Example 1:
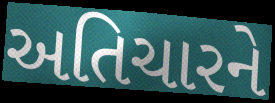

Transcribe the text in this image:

અતિચારને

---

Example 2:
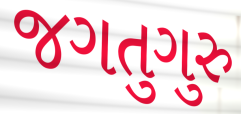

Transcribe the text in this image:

જગતુગુરુ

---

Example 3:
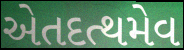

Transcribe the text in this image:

એતદત્થમેવ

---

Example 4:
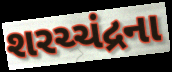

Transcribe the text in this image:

શરચ્ચંદ્રના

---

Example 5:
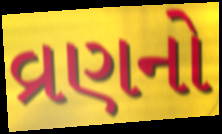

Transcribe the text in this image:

વ્રણનો